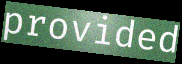
provided